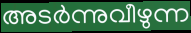
അടർന്നുവീഴുന്ന